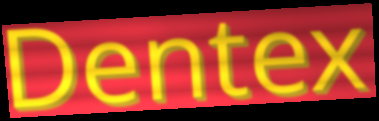
Dentex